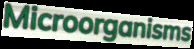
Microorganisms